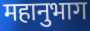
महानुभाग